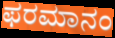
ಫರಮಾನಂ